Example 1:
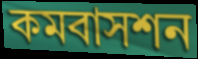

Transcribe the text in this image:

কমবাসশন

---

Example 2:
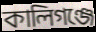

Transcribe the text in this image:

কালিগঞ্জে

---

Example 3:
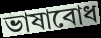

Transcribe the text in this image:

ভাষাবোধ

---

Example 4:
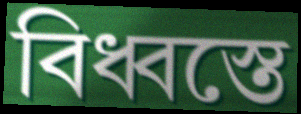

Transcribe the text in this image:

বিধ্বস্তে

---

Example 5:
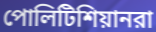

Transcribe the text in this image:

পোলিটিশিয়ানরা